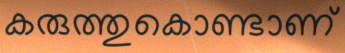
കരുത്തുകൊണ്ടാണ്